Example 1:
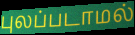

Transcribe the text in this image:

புலப்படாமல்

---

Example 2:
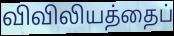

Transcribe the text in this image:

விவிலியத்தைப்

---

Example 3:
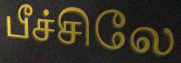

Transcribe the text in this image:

பீச்சிலே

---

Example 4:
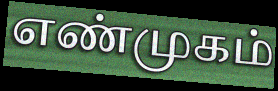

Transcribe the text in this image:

எண்முகம்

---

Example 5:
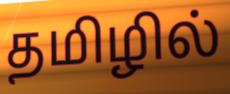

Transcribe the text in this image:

தமிழில்